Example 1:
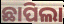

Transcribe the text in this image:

ଛାପିଲା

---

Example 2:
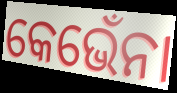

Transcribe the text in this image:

କେଭେଁନା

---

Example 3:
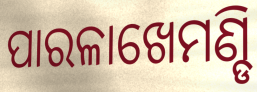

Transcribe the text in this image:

ପାରଳାଖେମଣ୍ଡି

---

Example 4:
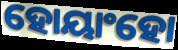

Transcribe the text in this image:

ହୋୟାଂହୋ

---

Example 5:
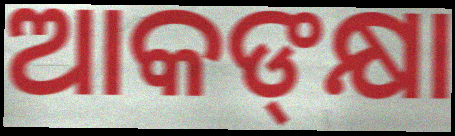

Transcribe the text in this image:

ଆକଙ୍‍କ୍ଷା